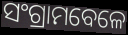
ସଂଗ୍ରାମବେଳେ